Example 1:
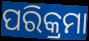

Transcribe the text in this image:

ପରିକ୍ରମା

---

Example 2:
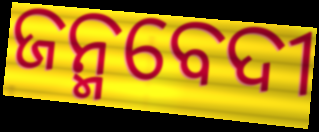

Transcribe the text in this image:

ଜନ୍ମବେଦୀ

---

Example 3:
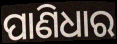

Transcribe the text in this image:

ପାଣିଧାର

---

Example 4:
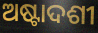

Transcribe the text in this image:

ଅଷ୍ଟାଦଶୀ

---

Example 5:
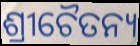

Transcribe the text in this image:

ଶ୍ରୀଚୈତନ୍ୟ